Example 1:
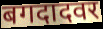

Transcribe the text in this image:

बगदादवर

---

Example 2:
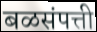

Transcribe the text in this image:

बळसंपत्ती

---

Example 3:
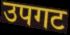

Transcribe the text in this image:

उपगट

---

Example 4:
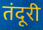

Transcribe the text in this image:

तंदूरी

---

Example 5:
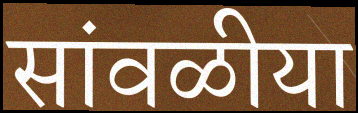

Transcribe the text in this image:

सांवळीया